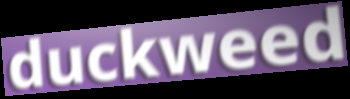
duckweed